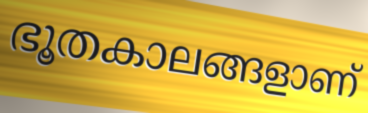
ഭൂതകാലങ്ങളാണ്